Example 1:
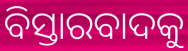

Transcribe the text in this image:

ବିସ୍ତାରବାଦକୁ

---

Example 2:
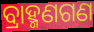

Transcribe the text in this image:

ବ୍ରାହ୍ମଣଗଣ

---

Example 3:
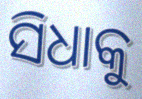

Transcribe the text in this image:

ସିଧାକୁ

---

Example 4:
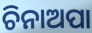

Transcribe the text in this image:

ଚିନାଅପା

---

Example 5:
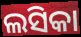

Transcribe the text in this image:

ଲସିକା